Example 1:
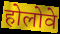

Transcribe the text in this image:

होलोवे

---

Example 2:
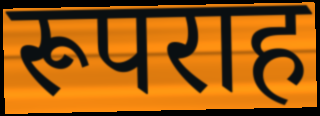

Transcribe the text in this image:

रूपराह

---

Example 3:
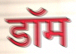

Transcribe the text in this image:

डॉम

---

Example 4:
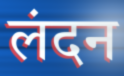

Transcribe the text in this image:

लंदन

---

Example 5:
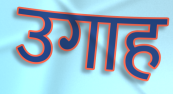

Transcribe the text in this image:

उगाह